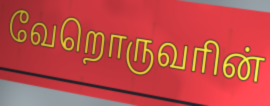
வேறொருவரின்